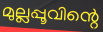
മുല്ലപ്പൂവിന്റെ